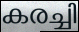
കരച്ചി